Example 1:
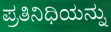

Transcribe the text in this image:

ಪ್ರತಿನಿಧಿಯನ್ನು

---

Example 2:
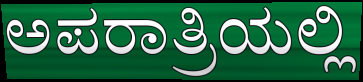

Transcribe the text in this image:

ಅಪರಾತ್ರಿಯಲ್ಲಿ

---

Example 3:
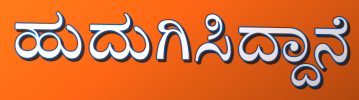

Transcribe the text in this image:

ಹುದುಗಿಸಿದ್ದಾನೆ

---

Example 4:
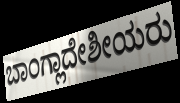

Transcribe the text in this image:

ಬಾಂಗ್ಲಾದೇಶೀಯರು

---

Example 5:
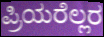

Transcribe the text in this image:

ಪ್ರಿಯರೆಲ್ಲರ